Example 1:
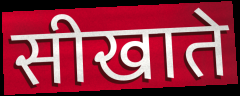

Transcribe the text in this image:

सीखाते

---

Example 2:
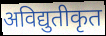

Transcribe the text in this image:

अविद्युतीकृत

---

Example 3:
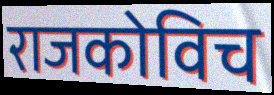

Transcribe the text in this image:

राजकोविच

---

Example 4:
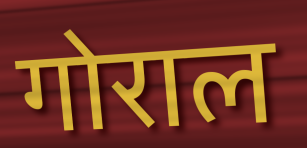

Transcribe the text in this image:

गोराल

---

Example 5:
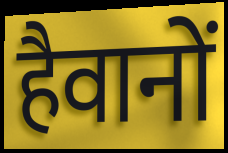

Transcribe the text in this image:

हैवानों